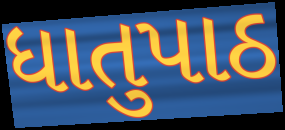
ધાતુપાઠ